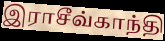
இராசீவ்காந்தி